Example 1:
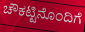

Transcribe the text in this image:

ಚೌಕಟ್ಟಿನೊಂದಿಗೆ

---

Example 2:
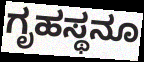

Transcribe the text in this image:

ಗೃಹಸ್ಥನೂ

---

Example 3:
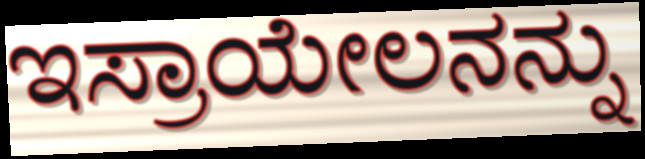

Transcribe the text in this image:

ಇಸ್ರಾಯೇಲನನ್ನು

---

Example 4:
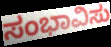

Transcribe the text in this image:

ಸಂಭಾವಿಸು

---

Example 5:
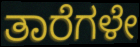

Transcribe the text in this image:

ತಾರೆಗಳೇ